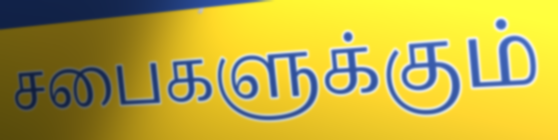
சபைகளுக்கும்